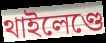
থাইলেণ্ডে